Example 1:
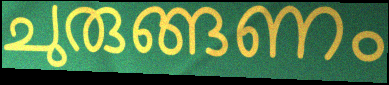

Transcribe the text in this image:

ചുരുങ്ങണം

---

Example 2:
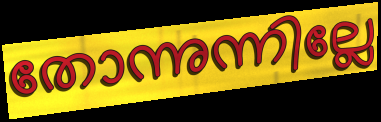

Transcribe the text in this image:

തോന്നുന്നില്ലേ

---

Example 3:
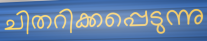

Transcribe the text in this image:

ചിതറിക്കപ്പെടുന്നു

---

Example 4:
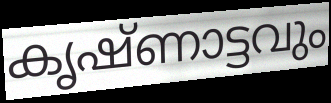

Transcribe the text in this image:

കൃഷ്ണാട്ടവും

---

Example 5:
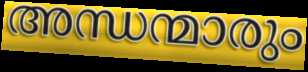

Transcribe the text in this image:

അന്ധന്മാരും